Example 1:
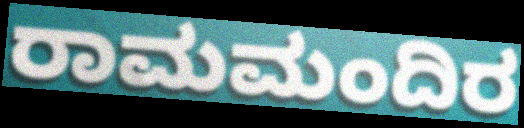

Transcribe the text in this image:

ರಾಮಮಂದಿರ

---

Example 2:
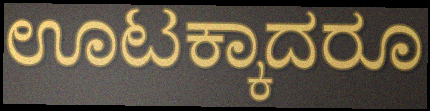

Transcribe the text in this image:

ಊಟಕ್ಕಾದರೂ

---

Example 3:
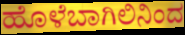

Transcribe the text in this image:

ಹೊಳೆಬಾಗಿಲಿನಿಂದ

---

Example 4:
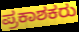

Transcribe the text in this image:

ಪ್ರಕಾಶಕರು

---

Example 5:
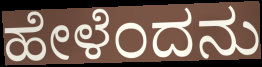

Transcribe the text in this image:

ಹೇಳೆಂದನು